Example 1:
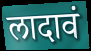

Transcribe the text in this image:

लादावं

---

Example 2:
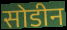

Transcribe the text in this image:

सोडीन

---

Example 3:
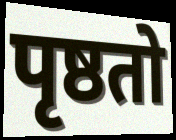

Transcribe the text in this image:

पृष्ठतो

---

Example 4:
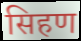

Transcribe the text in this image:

सिहण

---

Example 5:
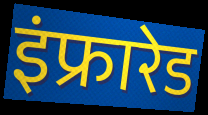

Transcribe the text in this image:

इंफ्रारेड